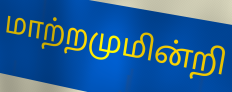
மாற்றமுமின்றி